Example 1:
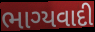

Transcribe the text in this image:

ભાગ્યવાદી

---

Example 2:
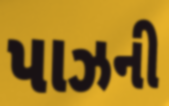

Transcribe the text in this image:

પાઝની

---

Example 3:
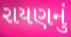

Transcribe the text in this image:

રાયણનું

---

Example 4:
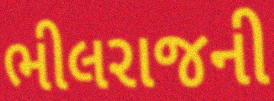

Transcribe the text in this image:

ભીલરાજની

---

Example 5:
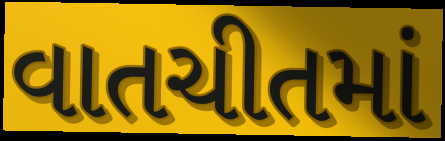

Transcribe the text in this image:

વાતચીતમાં